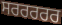
ਸਰਰਰਰਰ